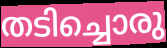
തടിച്ചൊരു